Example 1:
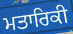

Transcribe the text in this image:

ਮਤਾਰਿਕੀ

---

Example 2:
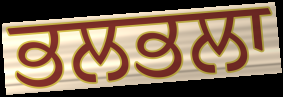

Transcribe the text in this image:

ਭਲਭਲਾ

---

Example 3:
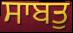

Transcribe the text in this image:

ਸਾਬਤੁ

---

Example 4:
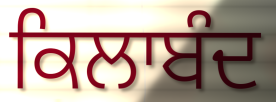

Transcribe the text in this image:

ਕਿਲਾਬੰਦ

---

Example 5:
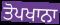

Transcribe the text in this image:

ਤੋਪਖਾਨਾ